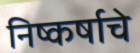
निष्कर्षाचे